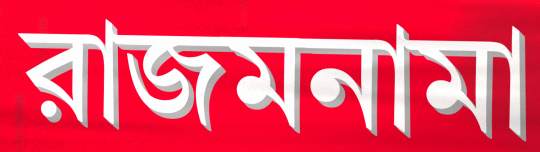
রাজমনামা